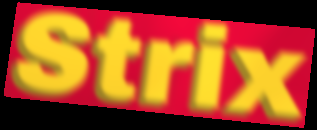
Strix